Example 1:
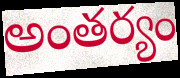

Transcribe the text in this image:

అంతర్యం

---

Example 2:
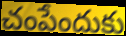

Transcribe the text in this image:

చంపేందుకు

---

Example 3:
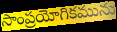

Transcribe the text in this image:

సాంప్రయోగికమును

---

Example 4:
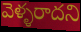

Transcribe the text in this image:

వెళ్ళరాదని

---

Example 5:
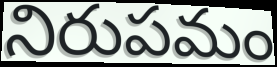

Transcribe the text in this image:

నిరుపమం